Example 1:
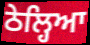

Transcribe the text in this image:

ਠੇਲ੍ਹਿਆ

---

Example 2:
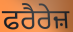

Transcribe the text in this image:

ਫਰੈਰੇਜ਼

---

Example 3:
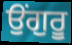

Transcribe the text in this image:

ਉਂਗੁਰੂ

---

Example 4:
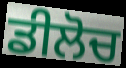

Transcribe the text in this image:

ਡੀਲੋਚ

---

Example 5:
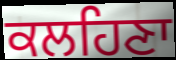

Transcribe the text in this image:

ਕਲਹਿਣਾ